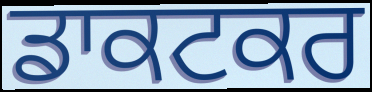
ਡਾਕਟਕਰ